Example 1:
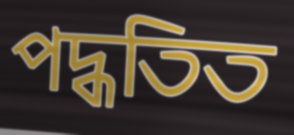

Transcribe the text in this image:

পদ্ধতিত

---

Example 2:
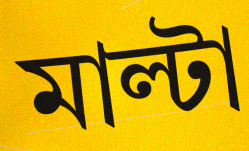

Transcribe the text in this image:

মাল্টা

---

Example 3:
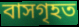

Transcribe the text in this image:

বাসগৃহত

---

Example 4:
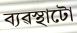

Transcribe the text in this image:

ব্যৱস্থাটো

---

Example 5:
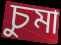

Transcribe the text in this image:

চুমা